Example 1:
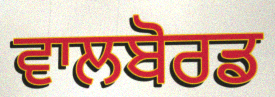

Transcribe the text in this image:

ਵਾਲਬੋਰਡ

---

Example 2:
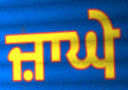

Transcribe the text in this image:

ਜ਼ਾਘੇ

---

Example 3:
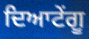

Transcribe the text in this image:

ਦਿਆਟੇਂਗੂ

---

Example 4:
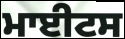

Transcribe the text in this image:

ਮਾਈਟਸ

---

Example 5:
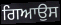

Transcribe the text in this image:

ਗਿਆਉਸ